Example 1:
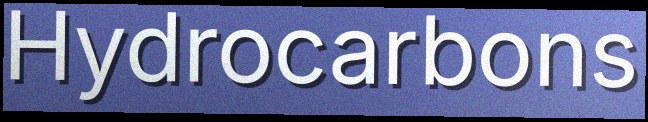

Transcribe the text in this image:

Hydrocarbons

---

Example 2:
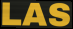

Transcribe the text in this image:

LAS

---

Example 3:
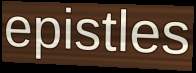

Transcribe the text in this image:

epistles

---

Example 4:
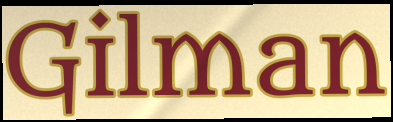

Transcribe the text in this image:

Gilman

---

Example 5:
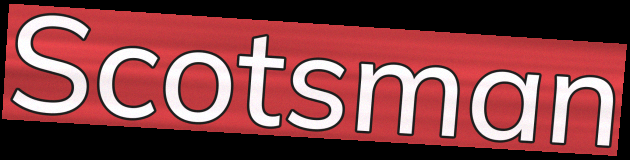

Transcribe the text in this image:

Scotsman